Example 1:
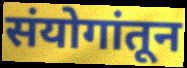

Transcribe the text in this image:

संयोगांतून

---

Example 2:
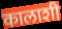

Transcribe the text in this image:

कालाशी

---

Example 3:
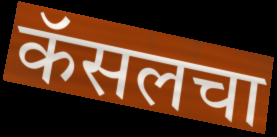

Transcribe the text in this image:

कॅसलचा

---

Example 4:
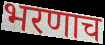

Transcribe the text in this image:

भरणाच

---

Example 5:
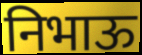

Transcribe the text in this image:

निभाऊ